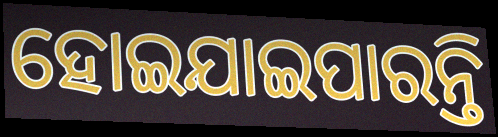
ହୋଇଯାଇପାରନ୍ତି